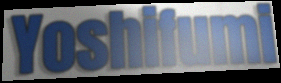
Yoshifumi